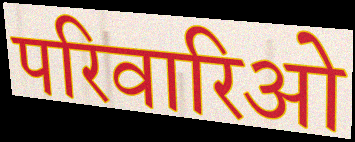
परिवारिओ